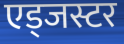
एड्जस्टर